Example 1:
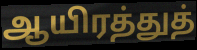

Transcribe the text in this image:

ஆயிரத்துத்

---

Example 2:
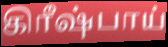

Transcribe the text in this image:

கிரீஷ்பாய்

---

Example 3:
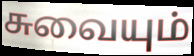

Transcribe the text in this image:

சுவையும்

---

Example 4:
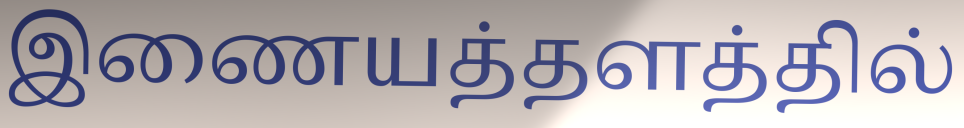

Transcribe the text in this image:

இணையத்தளத்தில்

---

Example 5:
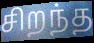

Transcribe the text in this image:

சிறந்த